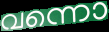
വന്നൊ